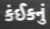
કંઈકનું